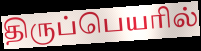
திருப்பெயரில்